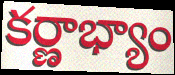
కర్ణాభ్యాం